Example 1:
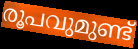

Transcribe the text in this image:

രൂപവുമുണ്ട്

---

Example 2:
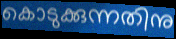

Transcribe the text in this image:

കൊടുക്കുന്നതിനു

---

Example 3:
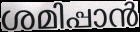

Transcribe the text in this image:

ശമിപ്പാൻ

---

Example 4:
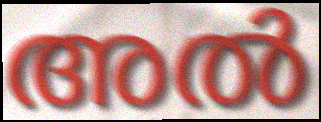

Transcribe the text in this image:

അൽ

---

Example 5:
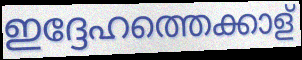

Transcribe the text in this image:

ഇദ്ദേഹത്തെക്കാള്